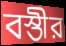
বস্তীর